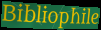
Bibliophile